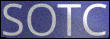
SOTC